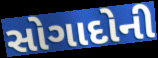
સોગાદોની